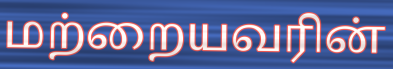
மற்றையவரின்